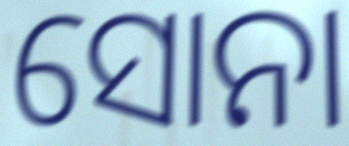
ସୋନା